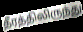
தீரத்திலிருந்து